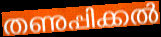
തണുപ്പിക്കൽ